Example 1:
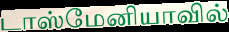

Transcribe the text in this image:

டாஸ்மேனியாவில்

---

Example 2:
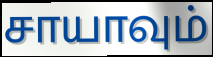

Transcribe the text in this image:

சாயாவும்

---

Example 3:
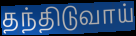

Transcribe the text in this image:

தந்திடுவாய்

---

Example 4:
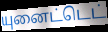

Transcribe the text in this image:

யுனைட்டெட்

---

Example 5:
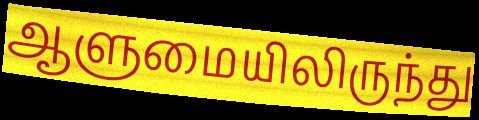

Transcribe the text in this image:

ஆளுமையிலிருந்து